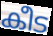
കീട